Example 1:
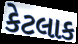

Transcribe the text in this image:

કેટલાક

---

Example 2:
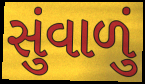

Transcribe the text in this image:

સુંવાળું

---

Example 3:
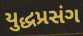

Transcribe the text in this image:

યુદ્ધપ્રસંગ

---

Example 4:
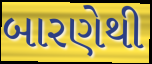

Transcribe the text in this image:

બારણેથી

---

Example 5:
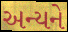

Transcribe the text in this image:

અન્યને